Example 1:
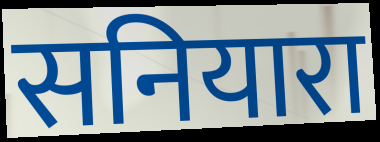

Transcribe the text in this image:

सनियारा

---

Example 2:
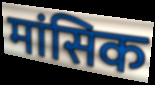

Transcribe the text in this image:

मांसिक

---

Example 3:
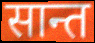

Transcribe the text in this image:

सान्त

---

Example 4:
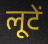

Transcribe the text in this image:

लूटें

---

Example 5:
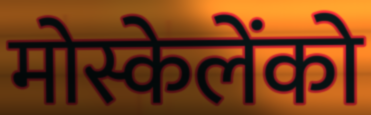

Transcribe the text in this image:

मोस्केलेंको